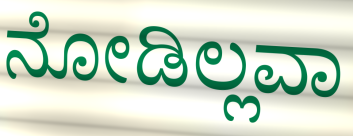
ನೋಡಿಲ್ಲವಾ